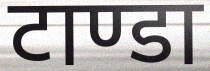
टाण्डा